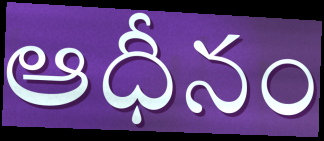
ఆధీనం